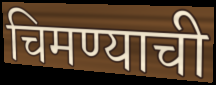
चिमण्याची